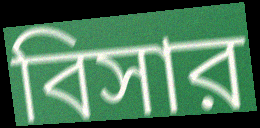
বিসার